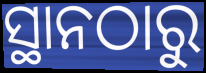
ସ୍ଥାନଠାରୁ